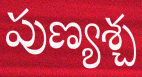
పుణ్యశ్చ